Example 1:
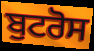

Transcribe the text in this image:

ਬੁਟਰੋਸ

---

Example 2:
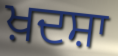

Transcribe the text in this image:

ਖ਼ਦਸ਼ਾ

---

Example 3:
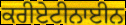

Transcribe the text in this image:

ਕਰੀਏਟੀਨਾਈਨ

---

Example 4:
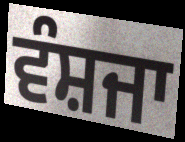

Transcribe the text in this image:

ਵੰਸ਼ਜਾ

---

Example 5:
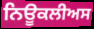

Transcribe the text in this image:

ਨਿਊਕਲੀਅਸ